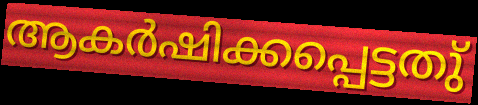
ആകർഷിക്കപ്പെട്ടതു്